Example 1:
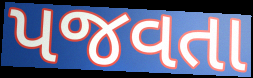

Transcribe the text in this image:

પજવતા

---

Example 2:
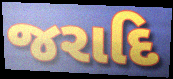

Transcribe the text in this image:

જરાદિ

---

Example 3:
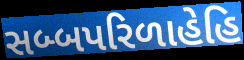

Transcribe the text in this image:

સબ્બપરિળાહેહિ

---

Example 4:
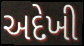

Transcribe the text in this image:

અદેખી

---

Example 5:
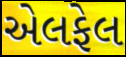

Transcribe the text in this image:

એલફેલ